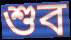
শুব